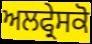
ਅਲਫ੍ਰੇਸਕੋ